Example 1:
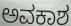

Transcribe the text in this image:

ಅವಕಾಶ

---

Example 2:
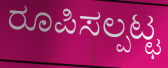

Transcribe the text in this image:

ರೂಪಿಸಲ್ಪಟ್ಟ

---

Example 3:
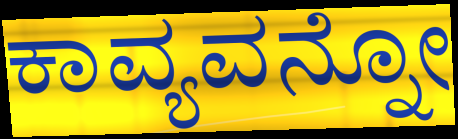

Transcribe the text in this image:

ಕಾವ್ಯವನ್ನೋ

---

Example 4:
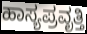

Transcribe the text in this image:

ಹಾಸ್ಯಪ್ರವೃತ್ತಿ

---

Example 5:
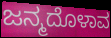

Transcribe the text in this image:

ಜನ್ಮದೊಳಾವ